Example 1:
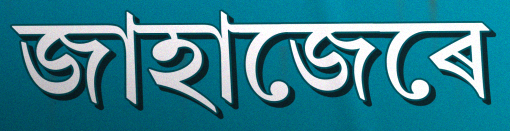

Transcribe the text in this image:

জাহাজেৰে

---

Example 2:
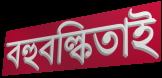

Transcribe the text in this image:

বহুবল্কিতাই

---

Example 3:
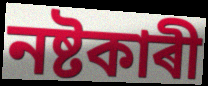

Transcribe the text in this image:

নষ্টকাৰী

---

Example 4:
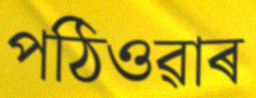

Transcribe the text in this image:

পঠিওৱাৰ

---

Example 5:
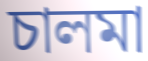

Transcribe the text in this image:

চালমা